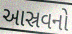
આસ્રવનો